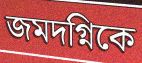
জমদগ্নিকে